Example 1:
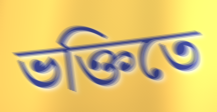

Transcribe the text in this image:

ভক্তিতে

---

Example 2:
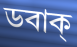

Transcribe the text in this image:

ডবাক্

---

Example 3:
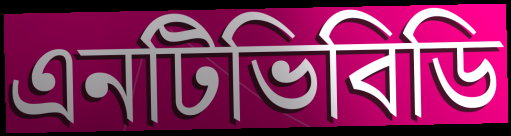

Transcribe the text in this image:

এনটিভিবিডি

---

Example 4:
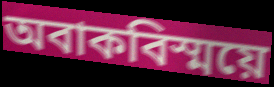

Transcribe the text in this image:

অবাকবিস্ময়ে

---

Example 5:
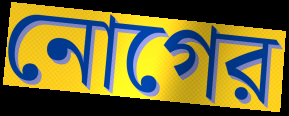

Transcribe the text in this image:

নোগের